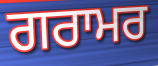
ਗਰਾਮਰ